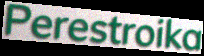
Perestroika